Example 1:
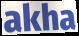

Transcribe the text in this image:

akha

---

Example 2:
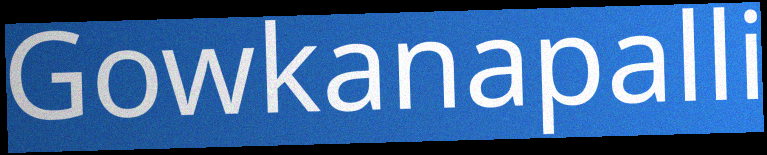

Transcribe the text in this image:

Gowkanapalli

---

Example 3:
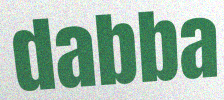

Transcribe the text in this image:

dabba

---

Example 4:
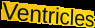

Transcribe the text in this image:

Ventricles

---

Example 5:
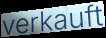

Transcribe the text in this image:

verkauft